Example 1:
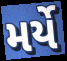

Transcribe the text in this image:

મર્યે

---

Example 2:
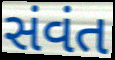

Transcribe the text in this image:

સંવંત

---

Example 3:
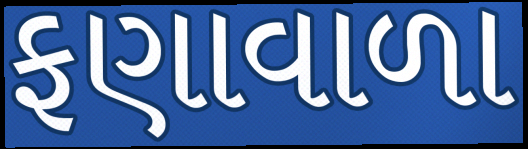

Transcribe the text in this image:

ફણાવાળા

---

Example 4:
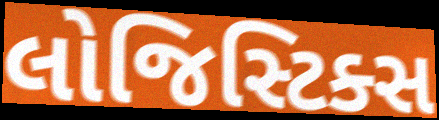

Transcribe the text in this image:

લોજિસ્ટિક્સ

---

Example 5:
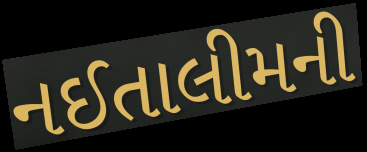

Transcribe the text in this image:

નઈતાલીમની